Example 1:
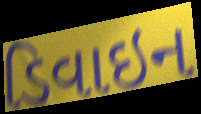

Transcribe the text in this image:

ડિવાઇન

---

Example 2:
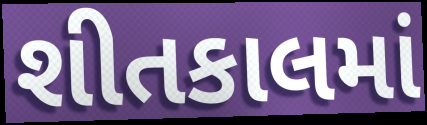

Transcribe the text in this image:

શીતકાલમાં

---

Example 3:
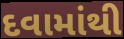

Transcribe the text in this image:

દવામાંથી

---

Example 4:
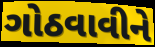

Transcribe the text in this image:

ગોઠવાવીને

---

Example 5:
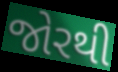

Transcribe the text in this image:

જોરથી